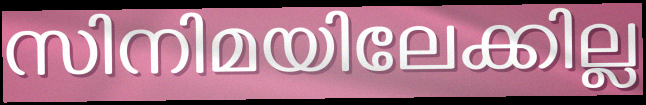
സിനിമയിലേക്കില്ല